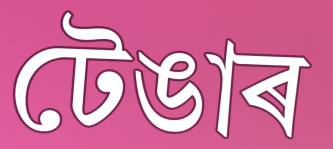
টেঙাৰ